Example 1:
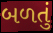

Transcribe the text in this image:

બળતું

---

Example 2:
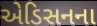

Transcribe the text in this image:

એડિસનના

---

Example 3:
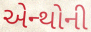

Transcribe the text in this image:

એન્થોની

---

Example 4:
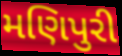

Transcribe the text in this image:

મણિપુરી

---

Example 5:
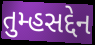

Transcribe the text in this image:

તુમ્હસદ્દેન